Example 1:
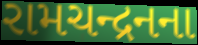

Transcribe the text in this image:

રામચન્દ્રનના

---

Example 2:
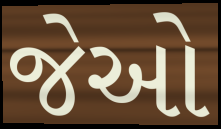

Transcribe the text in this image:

જેઓ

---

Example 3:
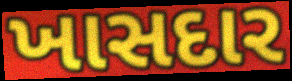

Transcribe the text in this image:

ખાસદાર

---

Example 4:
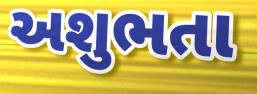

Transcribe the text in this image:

અશુભતા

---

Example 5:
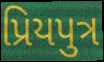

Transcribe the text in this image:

પ્રિયપુત્ર